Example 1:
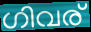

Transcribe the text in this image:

ഗിവര്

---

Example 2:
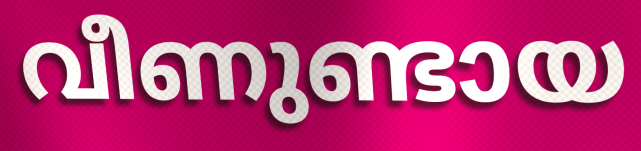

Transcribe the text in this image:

വീണുണ്ടായ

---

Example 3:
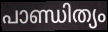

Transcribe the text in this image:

പാണ്ഡിത്യം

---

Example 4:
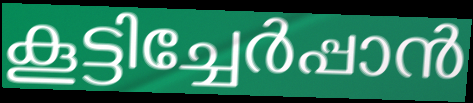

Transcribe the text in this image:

കൂട്ടിച്ചേർപ്പാൻ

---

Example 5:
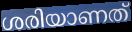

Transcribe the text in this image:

ശരിയാണത്